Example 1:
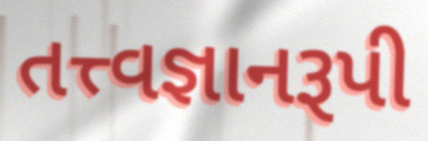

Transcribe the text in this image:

તત્ત્વજ્ઞાનરૂપી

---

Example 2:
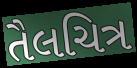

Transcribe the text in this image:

તૈલચિત્ર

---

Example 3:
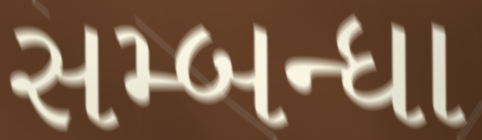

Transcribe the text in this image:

સમ્બન્ધા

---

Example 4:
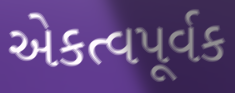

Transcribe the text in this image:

એકત્વપૂર્વક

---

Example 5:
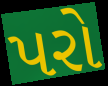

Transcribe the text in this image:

પરો